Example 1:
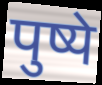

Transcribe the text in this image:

पुष्ये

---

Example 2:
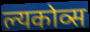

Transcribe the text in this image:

ल्यकोव्स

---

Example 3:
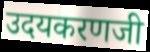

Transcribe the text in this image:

उदयकरणजी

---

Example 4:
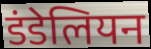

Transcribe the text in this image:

डंडेलियन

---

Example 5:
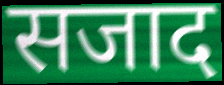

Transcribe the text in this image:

सजाद